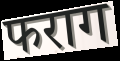
फराग